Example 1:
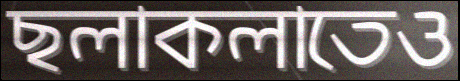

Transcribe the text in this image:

ছলাকলাতেও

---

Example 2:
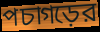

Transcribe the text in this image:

পচাগড়ের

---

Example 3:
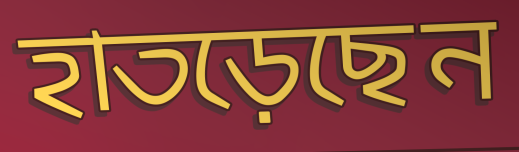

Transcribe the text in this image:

হাতড়েছেন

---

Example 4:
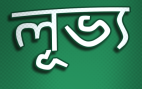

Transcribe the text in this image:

লূভ্য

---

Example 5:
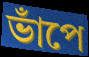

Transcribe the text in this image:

ভাঁপে